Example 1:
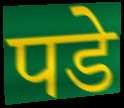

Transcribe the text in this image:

पडे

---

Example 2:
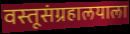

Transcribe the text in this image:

वस्तूसंग्रहालयाला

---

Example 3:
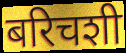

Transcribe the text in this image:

बरिचशी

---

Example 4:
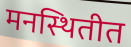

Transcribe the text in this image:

मनस्थितीत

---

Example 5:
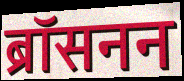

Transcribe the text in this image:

ब्रॉसनन